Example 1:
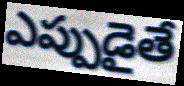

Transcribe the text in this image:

ఎప్పుడైతే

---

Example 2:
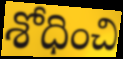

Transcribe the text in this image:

శోధించి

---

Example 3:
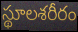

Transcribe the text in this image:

స్థూలశరీరం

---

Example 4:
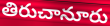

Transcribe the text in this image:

తిరుచానూరు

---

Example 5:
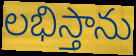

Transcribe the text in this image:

లభిస్తాను